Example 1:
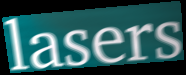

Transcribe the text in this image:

lasers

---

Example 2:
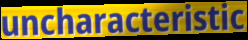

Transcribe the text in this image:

uncharacteristic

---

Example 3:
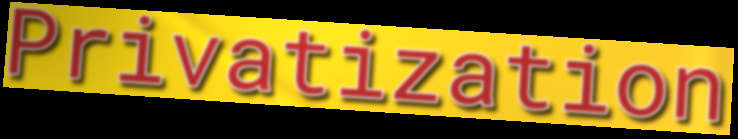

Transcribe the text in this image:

Privatization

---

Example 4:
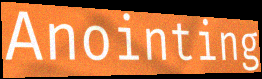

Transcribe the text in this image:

Anointing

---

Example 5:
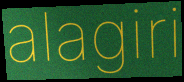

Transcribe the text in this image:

alagiri